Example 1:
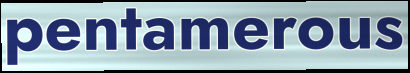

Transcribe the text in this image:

pentamerous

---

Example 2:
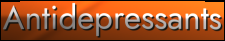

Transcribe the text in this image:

Antidepressants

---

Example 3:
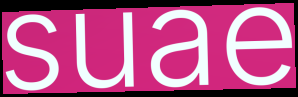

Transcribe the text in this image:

suae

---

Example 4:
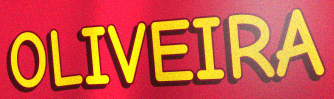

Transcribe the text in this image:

OLIVEIRA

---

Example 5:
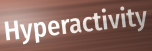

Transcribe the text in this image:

Hyperactivity